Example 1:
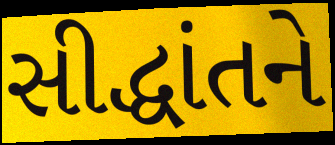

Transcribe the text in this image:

સીદ્ધાંતને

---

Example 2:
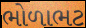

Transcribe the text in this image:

ભોળાભટ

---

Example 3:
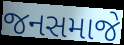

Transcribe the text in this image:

જનસમાજે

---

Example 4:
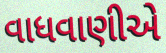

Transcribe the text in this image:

વાધવાણીએ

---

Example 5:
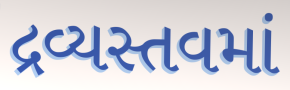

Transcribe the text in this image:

દ્રવ્યસ્તવમાં